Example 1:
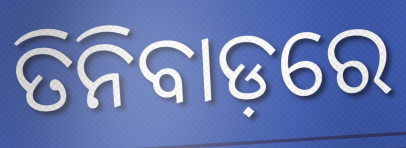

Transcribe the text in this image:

ତିନିବାଡ଼ରେ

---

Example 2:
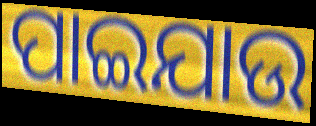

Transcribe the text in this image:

ପାଇଯାଉ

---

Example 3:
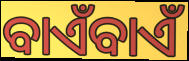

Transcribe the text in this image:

ବାଏଁବାଏଁ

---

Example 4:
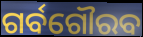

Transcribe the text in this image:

ଗର୍ବଗୌରବ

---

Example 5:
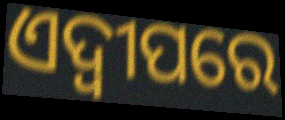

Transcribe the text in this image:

ଏଦ୍ୱୀପରେ